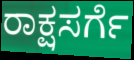
ರಾಕ್ಷಸರ್ಗೆ